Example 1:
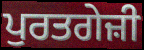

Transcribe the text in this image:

ਪੁਰਤਗੇਜ਼ੀ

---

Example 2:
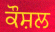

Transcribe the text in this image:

ਕੌਸ਼ਲ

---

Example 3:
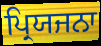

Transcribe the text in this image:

ਪ੍ਰਿਯਜਨਾ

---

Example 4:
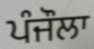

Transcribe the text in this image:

ਪੰਜੌਲਾ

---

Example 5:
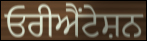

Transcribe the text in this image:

ਓਰੀਐਂਟੇਸ਼ਨ